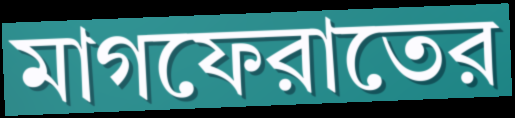
মাগফেরাতের